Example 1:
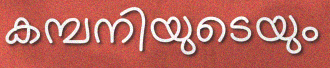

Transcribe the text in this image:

കമ്പനിയുടെയും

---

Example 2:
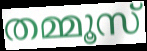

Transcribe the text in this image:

തമ്മൂസ്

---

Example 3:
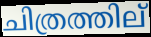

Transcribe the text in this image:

ചിത്രത്തില്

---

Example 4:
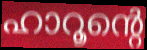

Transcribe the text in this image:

ഹാറൂന്റെ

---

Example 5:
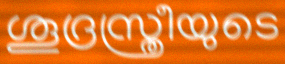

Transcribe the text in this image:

ശൂദ്രസ്ത്രീയുടെ